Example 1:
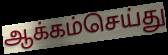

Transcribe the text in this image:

ஆக்கம்செய்து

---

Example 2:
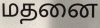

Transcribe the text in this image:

மதனை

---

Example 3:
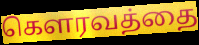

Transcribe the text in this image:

கௌரவத்தை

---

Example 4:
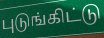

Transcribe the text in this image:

புடுங்கிட்டு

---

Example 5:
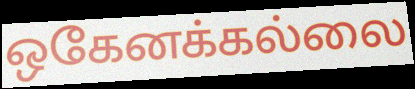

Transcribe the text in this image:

ஒகேனக்கல்லை